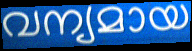
വന്യമായ